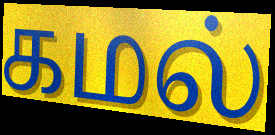
கமல்